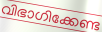
വിഭാഗിക്കേണ്ട